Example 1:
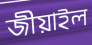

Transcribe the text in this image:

জীয়াইল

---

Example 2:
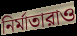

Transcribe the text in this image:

নির্মাতারাও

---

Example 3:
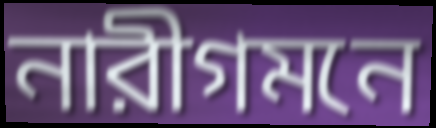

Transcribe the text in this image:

নারীগমনে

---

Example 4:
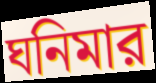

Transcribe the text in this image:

ঘনিমার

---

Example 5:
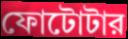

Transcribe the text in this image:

ফোটোটার